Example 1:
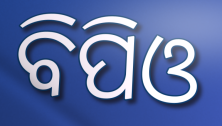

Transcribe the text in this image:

ବିପିଓ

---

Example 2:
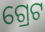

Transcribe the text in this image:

ଗ୍ରେଟ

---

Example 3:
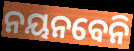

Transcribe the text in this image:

ନୟନବେନି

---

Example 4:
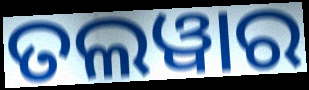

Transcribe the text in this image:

ତଲୱାର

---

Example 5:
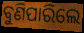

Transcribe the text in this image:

ବୁଣିପାରିଲେ